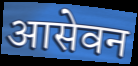
आसेवन